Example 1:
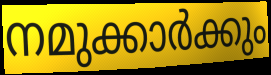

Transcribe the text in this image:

നമുക്കാർക്കും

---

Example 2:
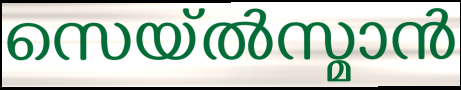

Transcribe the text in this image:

സെയ്ൽസ്മാൻ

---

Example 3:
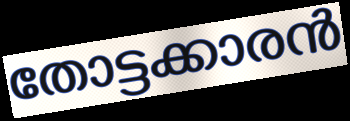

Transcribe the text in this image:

തോട്ടക്കാരൻ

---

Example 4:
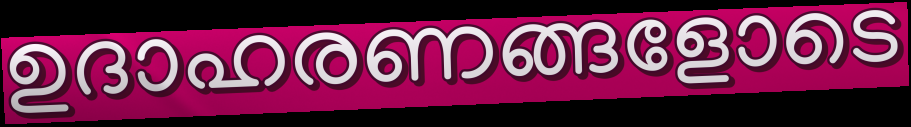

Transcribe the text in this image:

ഉദാഹരണങ്ങളോടെ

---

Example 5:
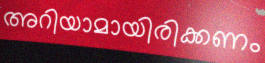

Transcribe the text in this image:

അറിയാമായിരിക്കണം